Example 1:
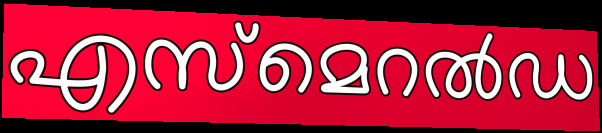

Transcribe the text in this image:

എസ്മെറൽഡ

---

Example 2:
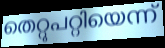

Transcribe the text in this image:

തെറ്റുപറ്റിയെന്ന്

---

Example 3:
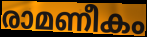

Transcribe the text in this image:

രാമണീകം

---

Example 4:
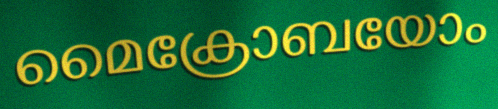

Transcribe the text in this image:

മൈക്രോബയോം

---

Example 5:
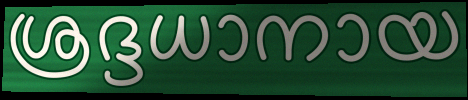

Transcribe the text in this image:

ശ്രദ്ദധാനായ